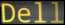
Dell